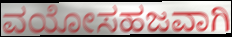
ವಯೋಸಹಜವಾಗಿ